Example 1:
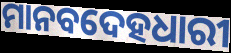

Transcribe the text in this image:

ମାନବଦେହଧାରୀ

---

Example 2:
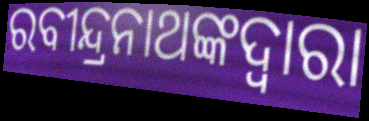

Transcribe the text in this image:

ରବୀନ୍ଦ୍ରନାଥଙ୍କଦ୍ୱାରା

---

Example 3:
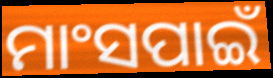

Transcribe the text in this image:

ମାଂସପାଇଁ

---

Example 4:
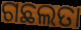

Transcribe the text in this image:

ଗଛଲତା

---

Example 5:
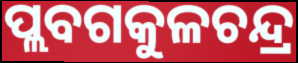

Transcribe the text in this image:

ପ୍ଲବଗକୁଳଚନ୍ଦ୍ର